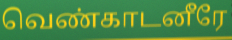
வெண்காடனீரே